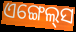
ଏଙ୍ଗେଲ୍‌ସ